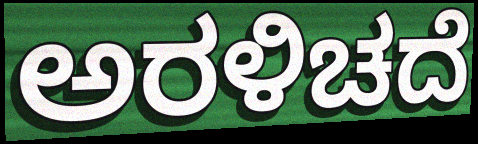
ಅರಳಿಚದೆ